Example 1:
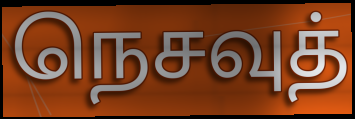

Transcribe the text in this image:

நெசவுத்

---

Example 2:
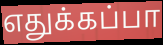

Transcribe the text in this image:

எதுக்கப்பா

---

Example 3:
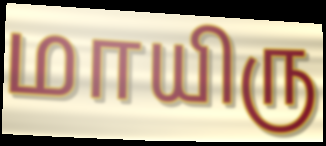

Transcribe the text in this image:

மாயிரு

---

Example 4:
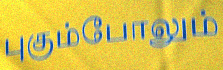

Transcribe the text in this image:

புகும்போலும்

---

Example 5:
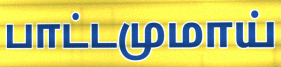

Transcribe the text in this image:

பாட்டமுமாய்